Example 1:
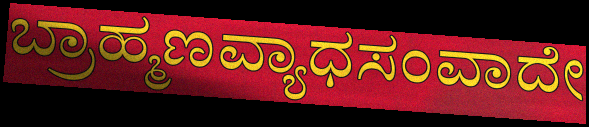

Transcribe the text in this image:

ಬ್ರಾಹ್ಮಣವ್ಯಾಧಸಂವಾದೇ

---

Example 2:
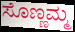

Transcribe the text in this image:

ಸೊಣ್ಣಮ್ಮ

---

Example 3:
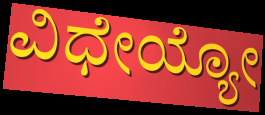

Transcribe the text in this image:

ವಿಧೇಯ್ಯೋ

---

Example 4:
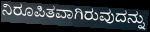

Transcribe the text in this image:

ನಿರೂಪಿತವಾಗಿರುವುದನ್ನು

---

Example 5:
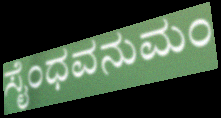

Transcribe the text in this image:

ಸೈಂಧವನುಮಂ